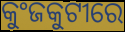
କୁଂଜକୁଟୀରେ